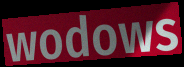
wodows